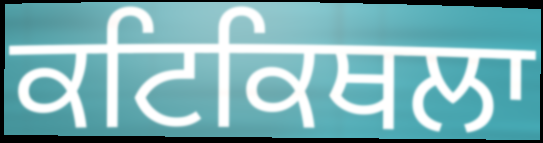
ਕਟਿਕਿਥਲਾ